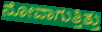
ನೋವಾಗುತ್ತಿತ್ತು